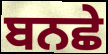
ਬਨਛੇ